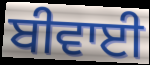
ਬੀਵਾਈ